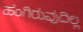
ಹಂಗಿರುವುದಿಲ್ಲ